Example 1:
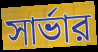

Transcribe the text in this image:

সার্ভার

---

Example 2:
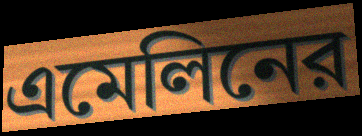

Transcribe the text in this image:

এমেলিনের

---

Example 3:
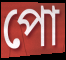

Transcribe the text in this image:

পো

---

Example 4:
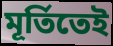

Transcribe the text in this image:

মূর্তিতেই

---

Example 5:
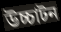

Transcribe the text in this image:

উচ্চাটন